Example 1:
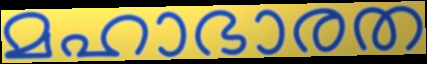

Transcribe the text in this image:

മഹാഭാരത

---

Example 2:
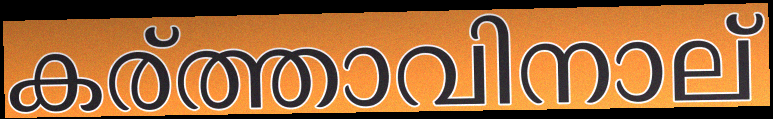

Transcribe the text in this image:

കര്ത്താവിനാല്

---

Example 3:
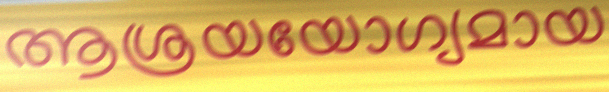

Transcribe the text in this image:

ആശ്രയയോഗ്യമായ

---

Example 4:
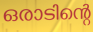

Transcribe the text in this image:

ഒരാടിന്റെ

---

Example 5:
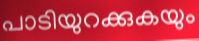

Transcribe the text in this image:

പാടിയുറക്കുകയും